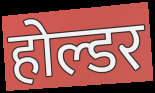
होल्डर